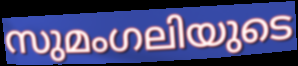
സുമംഗലിയുടെ